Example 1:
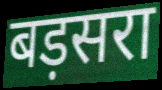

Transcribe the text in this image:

बड़सरा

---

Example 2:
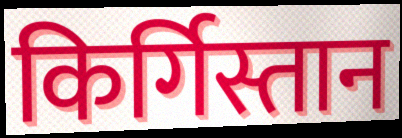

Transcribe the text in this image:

किर्गिस्तान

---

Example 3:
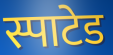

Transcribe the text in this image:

स्पाटेड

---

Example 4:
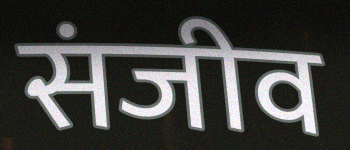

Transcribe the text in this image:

संजीव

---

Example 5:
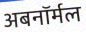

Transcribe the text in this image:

अबनॉर्मल